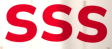
sss